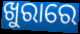
ଖୁରାରେ